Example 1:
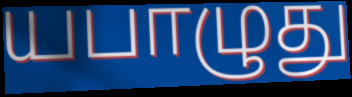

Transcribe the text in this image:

யபாழுது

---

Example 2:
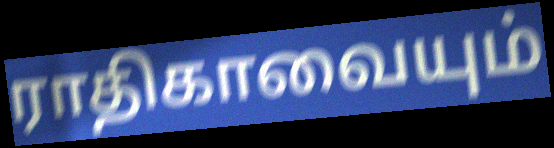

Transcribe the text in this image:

ராதிகாவையும்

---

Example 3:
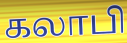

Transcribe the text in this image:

கலாபி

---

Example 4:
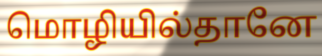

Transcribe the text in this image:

மொழியில்தானே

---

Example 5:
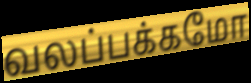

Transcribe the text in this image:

வலப்பக்கமோ